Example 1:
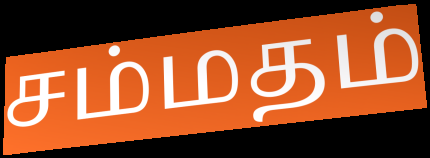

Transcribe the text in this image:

சம்மதம்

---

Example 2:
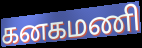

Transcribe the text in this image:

கனகமணி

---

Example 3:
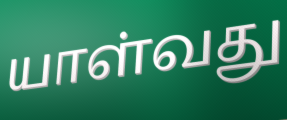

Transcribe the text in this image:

யாள்வது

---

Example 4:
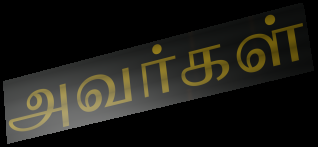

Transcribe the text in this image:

அவர்கள்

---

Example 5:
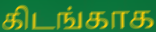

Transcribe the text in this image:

கிடங்காக